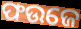
ଫଉଜେ